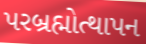
પરબ્રહ્મોત્થાપન